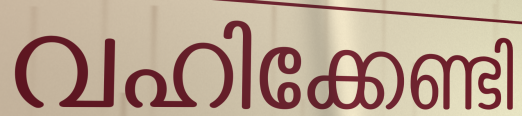
വഹിക്കേണ്ടി